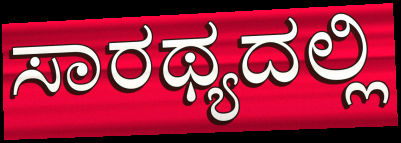
ಸಾರಥ್ಯದಲ್ಲಿ